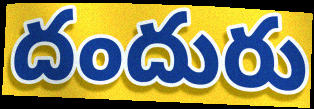
దందురు